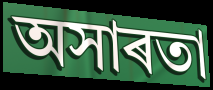
অসাৰতা